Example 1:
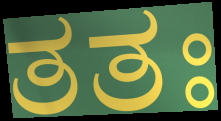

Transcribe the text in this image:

ತತಃ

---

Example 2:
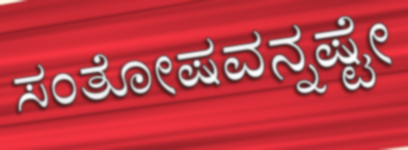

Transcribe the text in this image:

ಸಂತೋಷವನ್ನಷ್ಟೇ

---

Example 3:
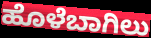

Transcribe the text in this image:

ಹೊಳೆಬಾಗಿಲು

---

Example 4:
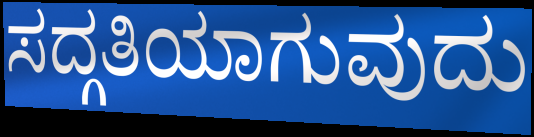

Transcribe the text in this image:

ಸದ್ಗತಿಯಾಗುವುದು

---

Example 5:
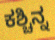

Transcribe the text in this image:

ಕಶ್ಚಿನ್ನ